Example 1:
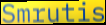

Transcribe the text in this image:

Smrutis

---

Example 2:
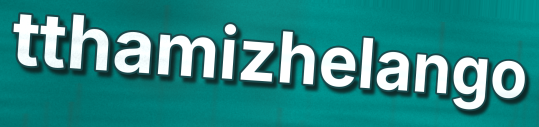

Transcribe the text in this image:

tthamizhelango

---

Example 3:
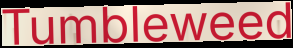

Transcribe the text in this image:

Tumbleweed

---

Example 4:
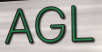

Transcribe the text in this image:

AGL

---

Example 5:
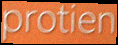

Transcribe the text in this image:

protien